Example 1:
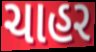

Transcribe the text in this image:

ચાહર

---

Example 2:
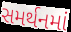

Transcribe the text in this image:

સમર્થનમાં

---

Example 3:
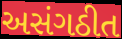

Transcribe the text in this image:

અસંગઠીત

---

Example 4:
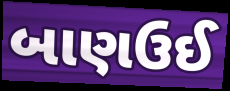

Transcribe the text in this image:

બાણઉઈ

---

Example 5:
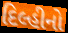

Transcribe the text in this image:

દિલ્હીનો